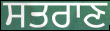
ਸਤਰਾਣ